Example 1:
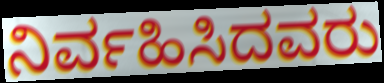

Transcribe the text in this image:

ನಿರ್ವಹಿಸಿದವರು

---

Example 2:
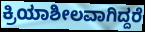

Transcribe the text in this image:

ಕ್ರಿಯಾಶೀಲವಾಗಿದ್ದರೆ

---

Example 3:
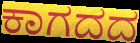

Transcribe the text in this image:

ಕಾಗದದ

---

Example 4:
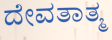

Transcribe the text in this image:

ದೇವತಾತ್ಮ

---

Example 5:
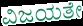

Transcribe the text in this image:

ವಿಜಯತೇ